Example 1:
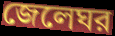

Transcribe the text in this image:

জেলেঘর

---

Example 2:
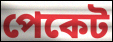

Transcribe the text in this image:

পেকেট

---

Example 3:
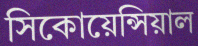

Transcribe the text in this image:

সিকোয়েন্সিয়াল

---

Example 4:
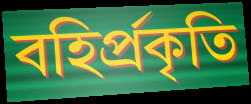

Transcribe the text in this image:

বহির্প্রকৃতি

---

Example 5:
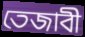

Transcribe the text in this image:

তেজাবী